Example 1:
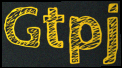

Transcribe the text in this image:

Gtpj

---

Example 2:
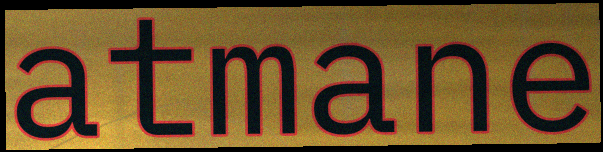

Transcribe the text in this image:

atmane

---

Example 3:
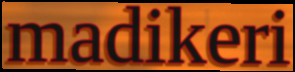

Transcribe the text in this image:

madikeri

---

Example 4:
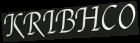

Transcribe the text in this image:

KRIBHCO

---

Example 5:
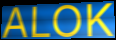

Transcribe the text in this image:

ALOK